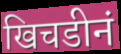
खिचडीनं